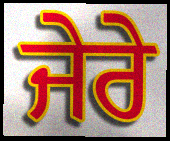
ਜੇਰੇ